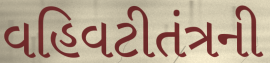
વહિવટીતંત્રની